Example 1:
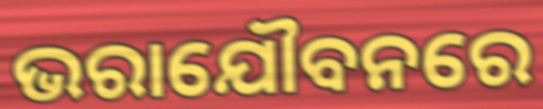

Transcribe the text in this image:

ଭରାଯୌବନରେ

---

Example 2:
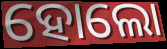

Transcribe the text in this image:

ହୋଲୋ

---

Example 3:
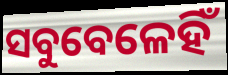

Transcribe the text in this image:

ସବୁବେଳେହିଁ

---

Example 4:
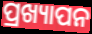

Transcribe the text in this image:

ପ୍ରଖ୍ୟାପନ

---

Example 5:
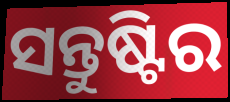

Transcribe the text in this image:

ସନ୍ତୁଷ୍ଟିର